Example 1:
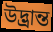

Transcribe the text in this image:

উদ্ভ্রান্ত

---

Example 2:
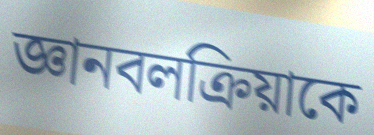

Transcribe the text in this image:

জ্ঞানবলক্রিয়াকে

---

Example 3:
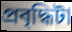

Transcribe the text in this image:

প্রবৃদ্ধিটা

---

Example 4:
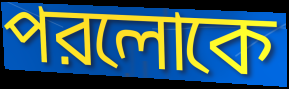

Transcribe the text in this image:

পরলোকে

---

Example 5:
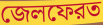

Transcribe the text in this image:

জেলফেরত